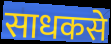
साधकसे